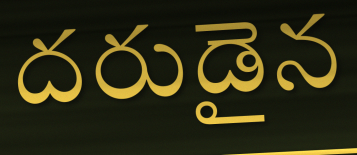
దరుడైన